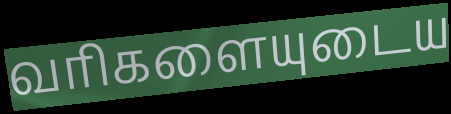
வரிகளையுடைய